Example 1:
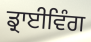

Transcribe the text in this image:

ਡ੍ਰਾਈਵਿੰਗ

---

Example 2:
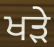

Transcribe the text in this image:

ਖੜੇ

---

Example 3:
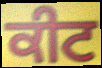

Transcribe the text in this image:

ਕੀਟ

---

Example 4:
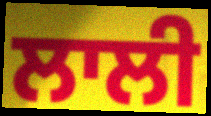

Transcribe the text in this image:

ਲਾਲੀ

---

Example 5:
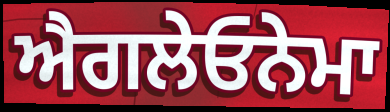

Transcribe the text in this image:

ਐਗਲੇਓਨੇਮਾ